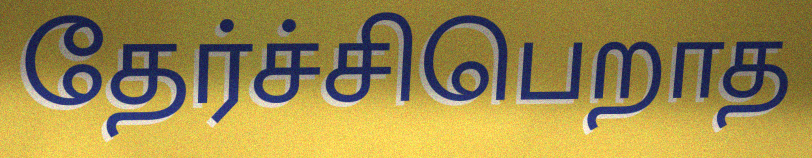
தேர்ச்சிபெறாத